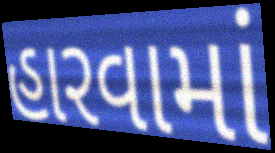
હારવામાં